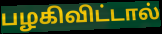
பழகிவிட்டால்